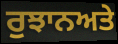
ਰੁਝਾਨਅਤੇ